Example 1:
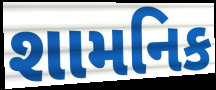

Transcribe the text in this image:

શામનિક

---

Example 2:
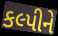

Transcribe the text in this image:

કલ્પીને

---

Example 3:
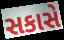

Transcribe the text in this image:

સકાસે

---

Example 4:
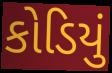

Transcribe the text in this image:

કોડિયું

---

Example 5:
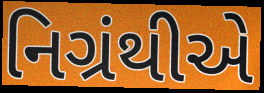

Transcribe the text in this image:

નિગ્રંથીએ